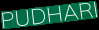
PUDHARI